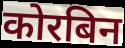
कोरबिन